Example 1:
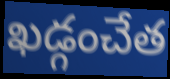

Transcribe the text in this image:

ఖడ్గంచేత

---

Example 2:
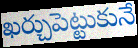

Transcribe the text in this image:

ఖర్చుపెట్టుకునే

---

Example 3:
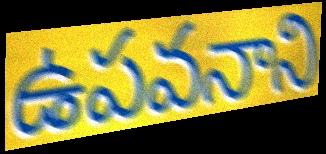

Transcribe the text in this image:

ఉపవనాని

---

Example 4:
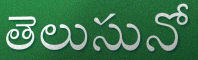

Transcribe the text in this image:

తెలుసునో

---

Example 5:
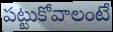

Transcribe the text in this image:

పట్టుకోవాలంటే